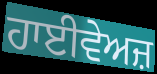
ਹਾਈਵੇਅਜ਼